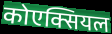
कोएक्सियल